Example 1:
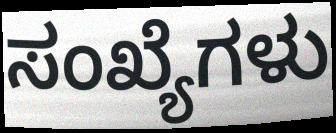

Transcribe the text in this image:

ಸಂಖ್ಯೆಗಳು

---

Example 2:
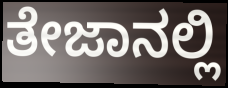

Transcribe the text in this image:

ತೇಜಾನಲ್ಲಿ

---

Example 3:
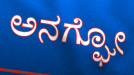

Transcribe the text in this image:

ಅನಗ್ಘೋ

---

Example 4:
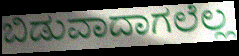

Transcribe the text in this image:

ಬಿಡುವಾದಾಗಲೆಲ್ಲ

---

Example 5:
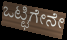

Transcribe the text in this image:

ಒಟ್ಟಿಗೇನೇ